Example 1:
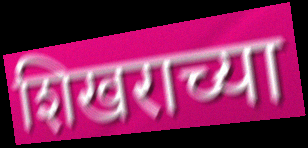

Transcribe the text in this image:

शिखराच्या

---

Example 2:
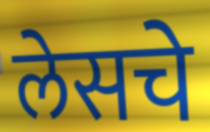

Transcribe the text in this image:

लेसचे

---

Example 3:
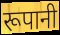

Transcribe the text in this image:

रूपानी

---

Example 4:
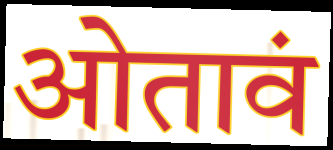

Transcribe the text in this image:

ओतावं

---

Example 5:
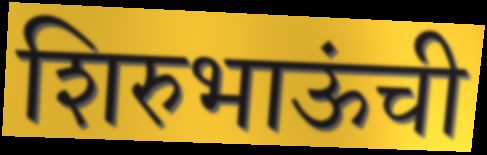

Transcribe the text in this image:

शिरुभाऊंची